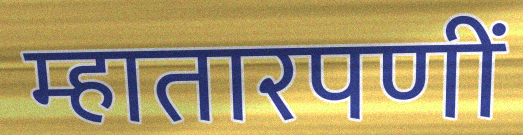
म्हातारपणीं